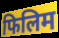
फिलिम